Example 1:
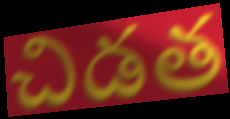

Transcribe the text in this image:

చిడత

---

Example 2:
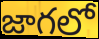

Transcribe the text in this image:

జాగలో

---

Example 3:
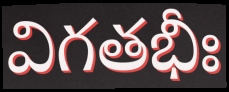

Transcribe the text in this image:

విగతభీః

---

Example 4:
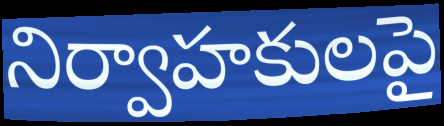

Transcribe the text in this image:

నిర్వాహకులపై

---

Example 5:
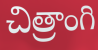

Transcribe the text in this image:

చిత్రాంగి